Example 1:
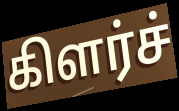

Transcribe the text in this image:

கிளர்ச்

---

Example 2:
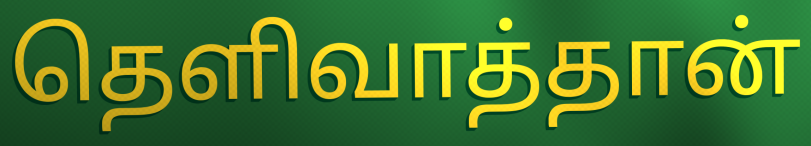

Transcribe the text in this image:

தெளிவாத்தான்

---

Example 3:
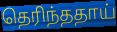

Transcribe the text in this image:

தெரிந்ததாய்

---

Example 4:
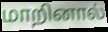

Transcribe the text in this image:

மாறினால்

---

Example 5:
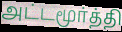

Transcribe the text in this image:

அட்டமூர்த்தி